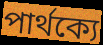
পার্থক্যে